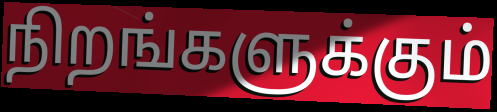
நிறங்களுக்கும்